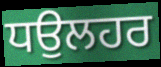
ਧਉਲਹਰ